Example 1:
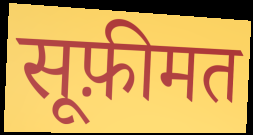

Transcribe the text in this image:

सूफ़ीमत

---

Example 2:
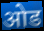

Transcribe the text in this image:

ओड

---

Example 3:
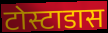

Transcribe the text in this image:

टोस्टाडास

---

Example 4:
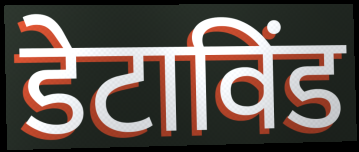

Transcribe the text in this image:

डेटाविंड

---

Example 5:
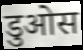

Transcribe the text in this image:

डुओस